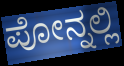
ಪೋನ್ನಲ್ಲಿ